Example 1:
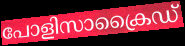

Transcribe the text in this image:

പോളിസാക്രൈഡ്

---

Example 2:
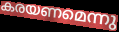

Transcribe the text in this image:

കരയണമെന്നു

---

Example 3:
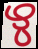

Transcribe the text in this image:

ഴു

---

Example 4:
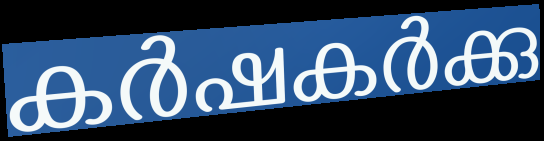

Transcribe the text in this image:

കർഷകർക്കു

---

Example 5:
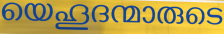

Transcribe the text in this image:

യെഹൂദന്മാരുടെ